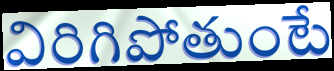
విరిగిపోతుంటే